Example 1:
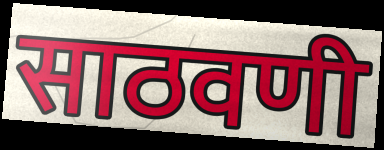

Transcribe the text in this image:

साठवणी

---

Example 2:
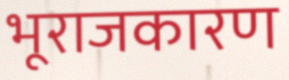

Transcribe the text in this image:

भूराजकारण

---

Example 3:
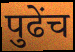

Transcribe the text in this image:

पुढेंच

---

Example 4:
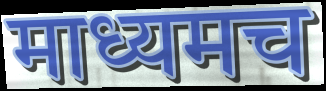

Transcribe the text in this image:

माध्यमच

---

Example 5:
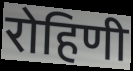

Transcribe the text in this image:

रोहिणी